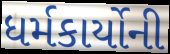
ધર્મકાર્યોની